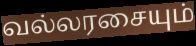
வல்லரசையும்